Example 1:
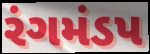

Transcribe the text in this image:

રંગમંડપ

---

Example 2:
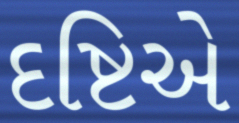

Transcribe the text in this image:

દષ્ટિએ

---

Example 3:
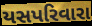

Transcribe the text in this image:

યસપરિવારા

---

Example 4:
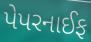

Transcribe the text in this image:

પેપરનાઈફ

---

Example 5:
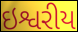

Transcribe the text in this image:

ઇશ્વરીય